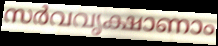
സർവവൃക്ഷാണാം